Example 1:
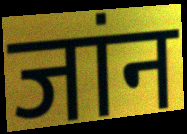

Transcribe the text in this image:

जांन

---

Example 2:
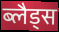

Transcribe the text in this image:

ब्लैड्स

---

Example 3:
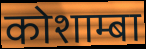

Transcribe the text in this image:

कोशाम्बा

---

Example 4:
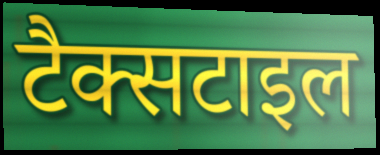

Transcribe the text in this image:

टैक्सटाइल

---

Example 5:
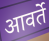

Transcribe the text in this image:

आवर्ते